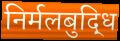
निर्मलबुद्धि